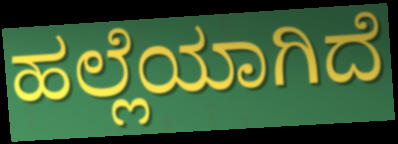
ಹಲ್ಲೆಯಾಗಿದೆ